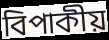
বিপাকীয়